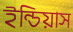
ইন্ডিয়াস